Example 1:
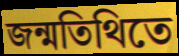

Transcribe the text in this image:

জন্মতিথিতে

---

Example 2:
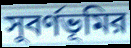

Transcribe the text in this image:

সুবর্ণভূমির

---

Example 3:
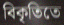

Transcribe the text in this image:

বিকৃতিতে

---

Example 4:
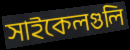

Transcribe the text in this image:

সাইকেলগুলি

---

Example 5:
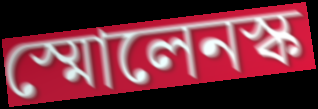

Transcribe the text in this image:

স্মোলেনস্ক